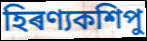
হিৰণ্যকশিপু